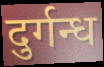
दुर्गन्ध